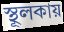
স্থূলকায়